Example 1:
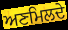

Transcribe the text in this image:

ਅਣਮਿਲਦੇ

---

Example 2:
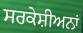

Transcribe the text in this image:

ਸਰਕੇਸ਼ੀਅਨਾਂ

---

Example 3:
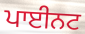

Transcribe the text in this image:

ਪਾਈਨਟ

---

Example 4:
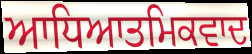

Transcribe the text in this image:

ਆਧਿਆਤਮਿਕਵਾਦ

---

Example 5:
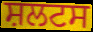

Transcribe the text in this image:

ਸ਼ਲਟਸ